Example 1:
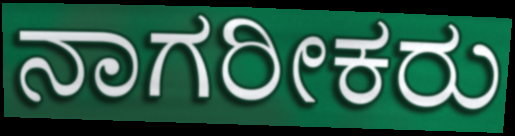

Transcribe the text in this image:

ನಾಗರೀಕರು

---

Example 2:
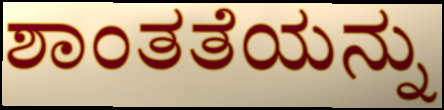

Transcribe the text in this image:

ಶಾಂತತೆಯನ್ನು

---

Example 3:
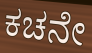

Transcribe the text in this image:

ಕಚನೇ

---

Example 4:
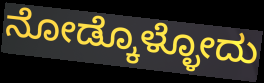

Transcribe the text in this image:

ನೋಡ್ಕೊಳ್ಳೋದು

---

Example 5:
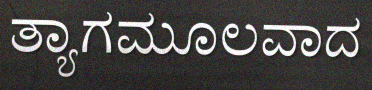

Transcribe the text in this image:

ತ್ಯಾಗಮೂಲವಾದ